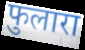
फुलारा